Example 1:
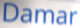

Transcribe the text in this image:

Damar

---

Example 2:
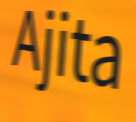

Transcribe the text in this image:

Ajita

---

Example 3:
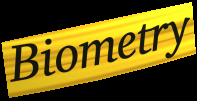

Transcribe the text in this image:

Biometry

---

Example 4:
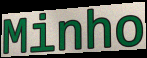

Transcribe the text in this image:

Minho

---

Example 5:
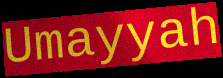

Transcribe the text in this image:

Umayyah